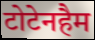
टोटेनहैम